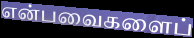
என்பவைகளைப்